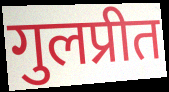
गुलप्रीत